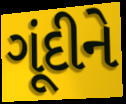
ગૂંદીને